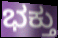
ಭಕ್ತು